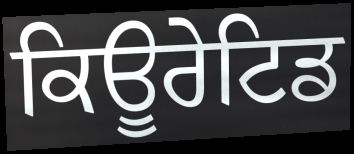
ਕਿਊਰੇਟਿਡ